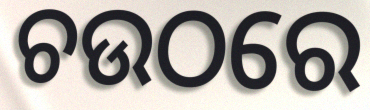
ଚଉଠରେ